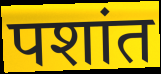
पशांत